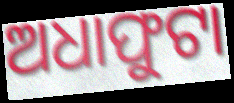
ଅଧାଫୁଟା